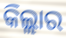
କିଲ୍ଲାର